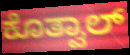
ಕೊತ್ವಾಲ್